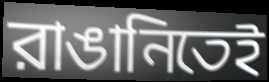
রাঙানিতেই